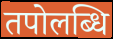
तपोलब्धि